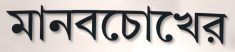
মানবচোখের